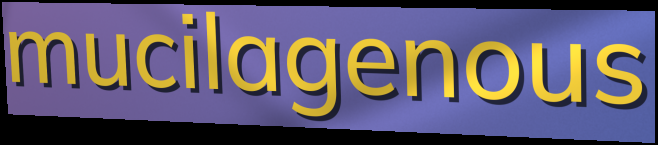
mucilagenous